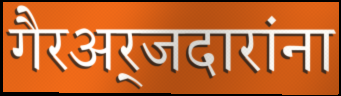
गैरअर्जदारांना